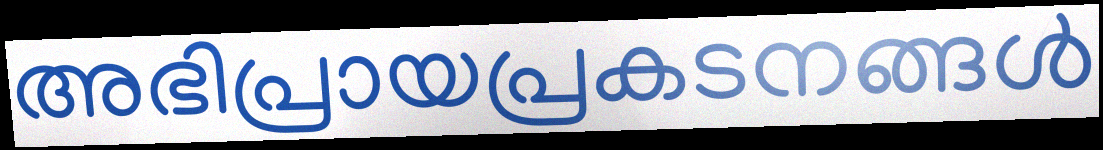
അഭിപ്രായപ്രകടനങ്ങൾ